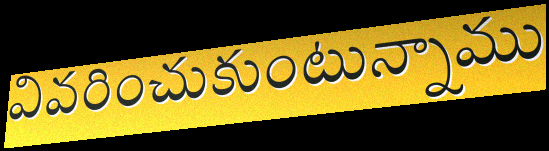
వివరించుకుంటున్నాము